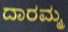
ದಾರಮ್ಮ